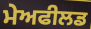
ਮੇਅਫੀਲਡ